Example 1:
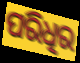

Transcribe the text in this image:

ପରିଧିର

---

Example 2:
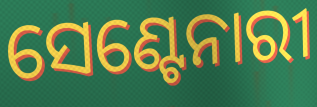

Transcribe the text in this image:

ସେଣ୍ଟେନାରୀ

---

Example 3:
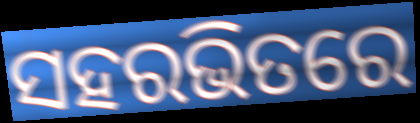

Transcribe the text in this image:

ସହରଭିତରେ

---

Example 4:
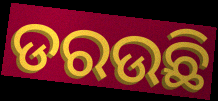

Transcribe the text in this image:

ଡରଉଛି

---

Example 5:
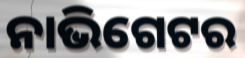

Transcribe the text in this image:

ନାଭିଗେଟର